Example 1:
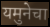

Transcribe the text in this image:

यमुनेचा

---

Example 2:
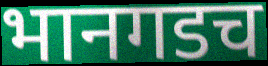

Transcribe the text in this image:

भानगडच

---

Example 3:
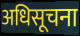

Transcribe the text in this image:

अधिसूचना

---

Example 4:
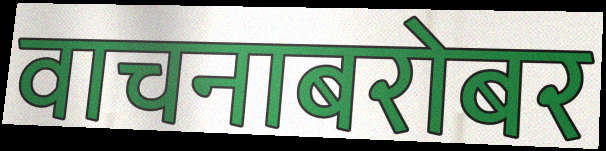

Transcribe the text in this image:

वाचनाबरोबर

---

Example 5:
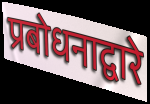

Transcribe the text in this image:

प्रबोधनाद्वारे